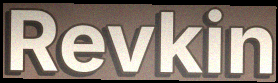
Revkin